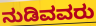
ನುಡಿವವರು